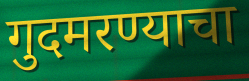
गुदमरण्याचा